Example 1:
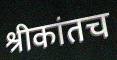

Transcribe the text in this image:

श्रीकांतच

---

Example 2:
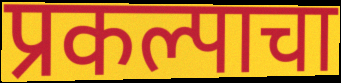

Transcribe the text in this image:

प्रकल्पाचा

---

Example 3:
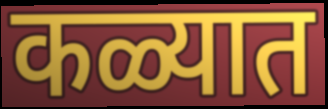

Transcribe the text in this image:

कळ्यात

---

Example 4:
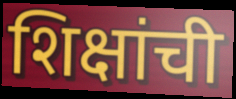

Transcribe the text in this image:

शिक्षांची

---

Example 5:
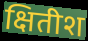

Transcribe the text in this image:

क्षितीश